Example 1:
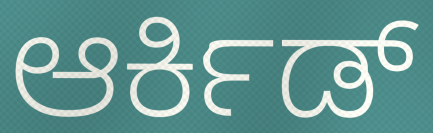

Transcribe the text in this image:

ಆರ್ಕಿಡ್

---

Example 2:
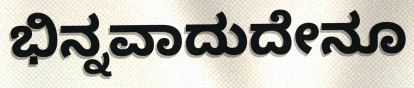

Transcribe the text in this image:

ಭಿನ್ನವಾದುದೇನೂ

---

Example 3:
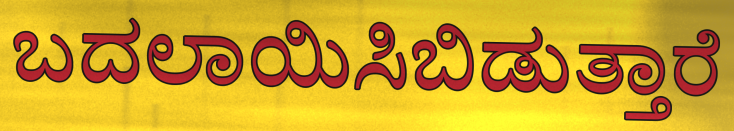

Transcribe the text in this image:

ಬದಲಾಯಿಸಿಬಿಡುತ್ತಾರೆ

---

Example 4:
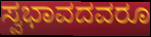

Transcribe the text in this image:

ಸ್ವಭಾವದವರೂ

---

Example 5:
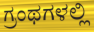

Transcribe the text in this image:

ಗ್ರಂಥಗಳಲ್ಲಿ